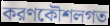
করণকৌশলগত